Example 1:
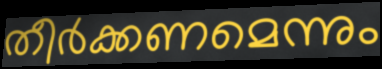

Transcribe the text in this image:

തീർക്കണമെന്നും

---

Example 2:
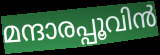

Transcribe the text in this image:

മന്ദാരപ്പൂവിൻ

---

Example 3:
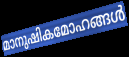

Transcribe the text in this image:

മാനുഷികമോഹങ്ങൾ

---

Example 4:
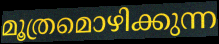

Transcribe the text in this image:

മൂത്രമൊഴിക്കുന്ന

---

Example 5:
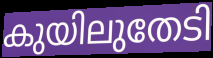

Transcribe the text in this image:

കുയിലുതേടി